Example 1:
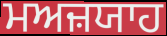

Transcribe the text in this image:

ਮਅਜ਼ਯਾਹ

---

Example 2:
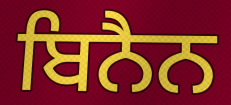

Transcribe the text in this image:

ਬਿਨੈਨ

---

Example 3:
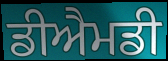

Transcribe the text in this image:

ਡੀਐਮਡੀ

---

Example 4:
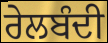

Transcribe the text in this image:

ਰੇਲਬੰਦੀ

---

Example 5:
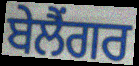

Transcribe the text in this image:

ਬੇਲੈਂਗਰ